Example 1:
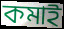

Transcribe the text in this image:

কমাই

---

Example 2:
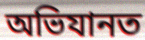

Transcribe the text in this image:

অভিযানত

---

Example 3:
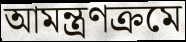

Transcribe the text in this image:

আমন্ত্ৰণক্ৰমে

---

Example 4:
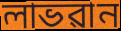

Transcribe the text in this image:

লাভৱান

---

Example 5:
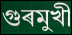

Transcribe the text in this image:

গুৰমুখী